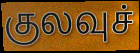
குலவுச்